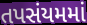
તપસંયમમાં